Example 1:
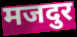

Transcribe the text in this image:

मजदुर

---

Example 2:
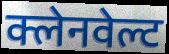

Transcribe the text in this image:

क्लेनवेल्ट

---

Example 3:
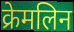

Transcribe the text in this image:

क्रेमलिन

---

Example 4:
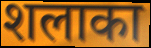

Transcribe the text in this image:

शलाका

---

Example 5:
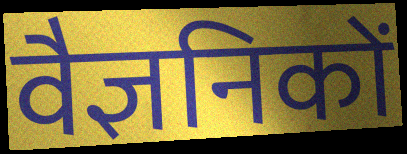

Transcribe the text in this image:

वैज्ञनिकों